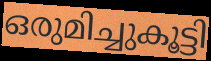
ഒരുമിച്ചുകൂട്ടി